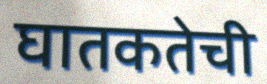
घातकतेची